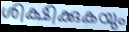
ശിക്ഷിക്കുകയും